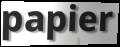
papier